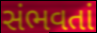
સંભવતાં